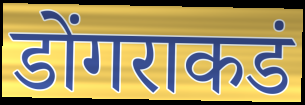
डोंगराकडं